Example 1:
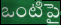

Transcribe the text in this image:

ఒంటిపై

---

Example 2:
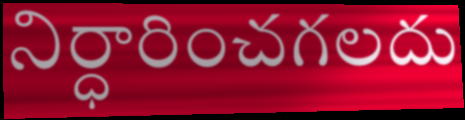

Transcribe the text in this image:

నిర్ధారించగలదు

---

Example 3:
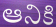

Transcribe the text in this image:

ఆనికి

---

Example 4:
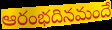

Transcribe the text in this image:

ఆరంభదినమందే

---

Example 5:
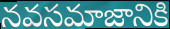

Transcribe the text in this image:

నవసమాజానికి